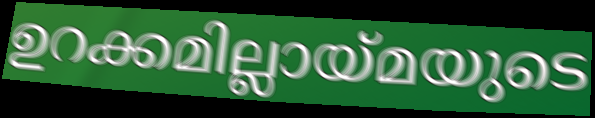
ഉറക്കമില്ലായ്മയുടെ